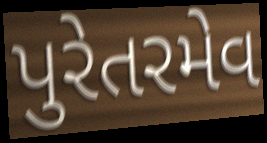
પુરેતરમેવ